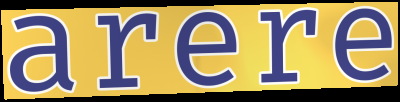
arere